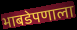
भाबडेपणाला